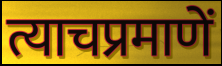
त्याचप्रमाणें